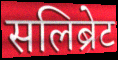
सलिब्रेट